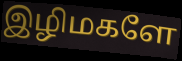
இழிமகளே